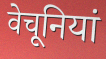
वेचूनियां